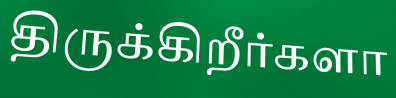
திருக்கிறீர்களா